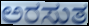
ಅರಸುತ